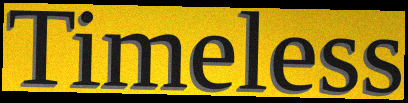
Timeless